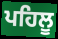
ਪਹਿਲੂ